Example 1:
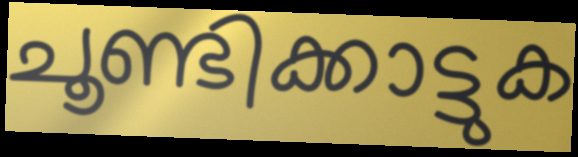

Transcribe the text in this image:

ചൂണ്ടിക്കാട്ടുക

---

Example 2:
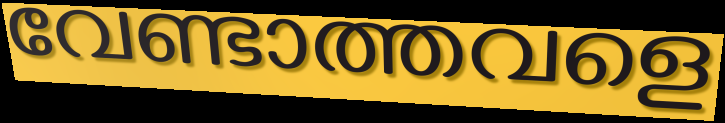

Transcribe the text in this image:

വേണ്ടാത്തവളെ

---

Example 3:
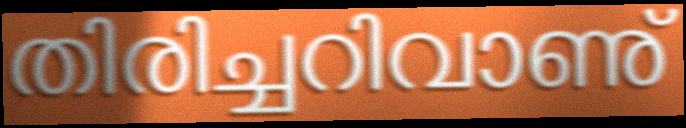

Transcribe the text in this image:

തിരിച്ചറിവാണു്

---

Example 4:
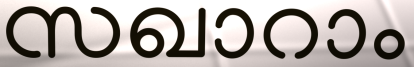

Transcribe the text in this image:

സഖാറാം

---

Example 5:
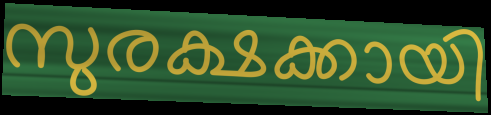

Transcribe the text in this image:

സുരക്ഷക്കായി